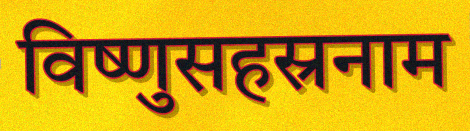
विष्णुसहस्रनाम